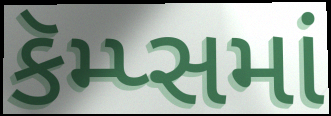
કૅમ્પ્સમાં